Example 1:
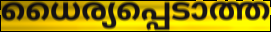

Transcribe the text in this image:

ധൈര്യപ്പെടാത്ത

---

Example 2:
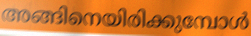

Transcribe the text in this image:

അങ്ങിനെയിരിക്കുമ്പോൾ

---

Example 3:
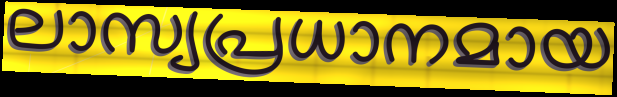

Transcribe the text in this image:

ലാസ്യപ്രധാനമായ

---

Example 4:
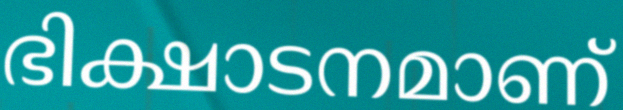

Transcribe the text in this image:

ഭിക്ഷാടനമാണ്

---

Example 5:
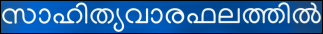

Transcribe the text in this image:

സാഹിത്യവാരഫലത്തിൽ